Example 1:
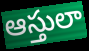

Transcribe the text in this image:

ఆస్తులా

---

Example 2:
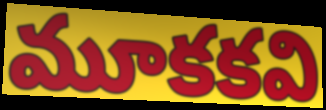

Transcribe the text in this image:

మూకకవి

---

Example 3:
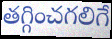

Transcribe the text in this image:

తగ్గించగలిగే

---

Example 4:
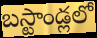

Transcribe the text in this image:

బస్టాండ్లలో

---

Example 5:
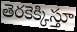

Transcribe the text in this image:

తెరకెక్కిస్తూ